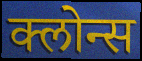
क्लोन्स